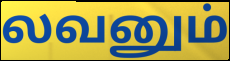
லவனும்